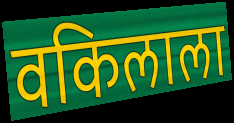
वकिलाला